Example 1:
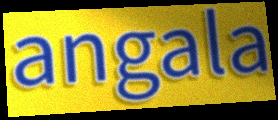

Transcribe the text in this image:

angala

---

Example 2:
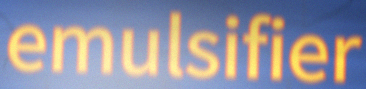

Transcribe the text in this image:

emulsifier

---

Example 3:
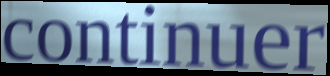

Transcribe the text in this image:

continuer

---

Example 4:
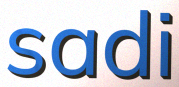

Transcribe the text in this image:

sadi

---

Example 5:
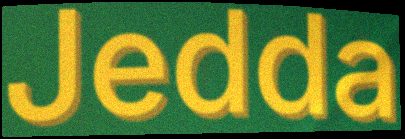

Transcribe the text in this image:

Jedda